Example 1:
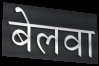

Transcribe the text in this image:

बेलवा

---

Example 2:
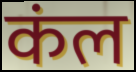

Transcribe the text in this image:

कंल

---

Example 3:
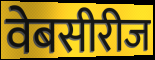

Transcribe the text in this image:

वेबसीरीज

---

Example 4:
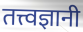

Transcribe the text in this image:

तत्त्वज्ञानी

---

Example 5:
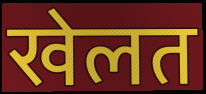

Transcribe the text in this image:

खेलत